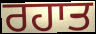
ਰਹਾਤ